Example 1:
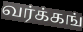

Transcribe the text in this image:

வர்க்கங்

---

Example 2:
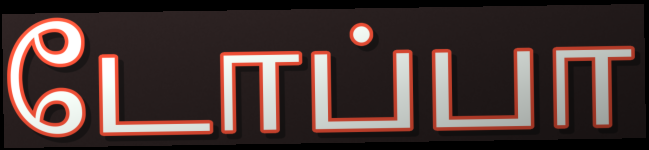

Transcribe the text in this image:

டோப்பா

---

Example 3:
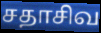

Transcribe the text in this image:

சதாசிவ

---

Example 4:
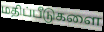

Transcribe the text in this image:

மதிப்பீடுகளை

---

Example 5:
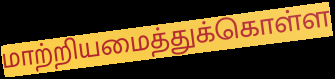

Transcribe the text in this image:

மாற்றியமைத்துக்கொள்ள